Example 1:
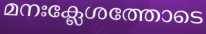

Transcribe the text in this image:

മനഃക്ലേശത്തോടെ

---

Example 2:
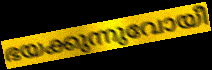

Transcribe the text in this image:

ഭയക്കുന്നുവോയീ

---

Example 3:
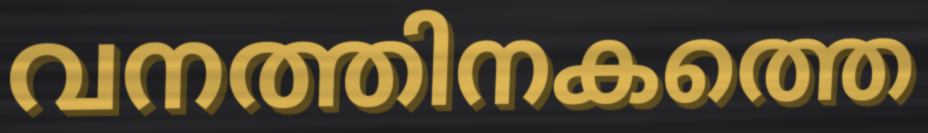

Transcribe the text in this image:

വനത്തിനകത്തെ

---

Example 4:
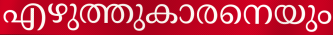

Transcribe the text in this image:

എഴുത്തുകാരനെയും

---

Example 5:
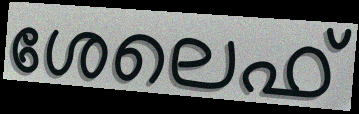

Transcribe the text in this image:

ശേലെഫ്